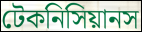
টেকনিসিয়ানস